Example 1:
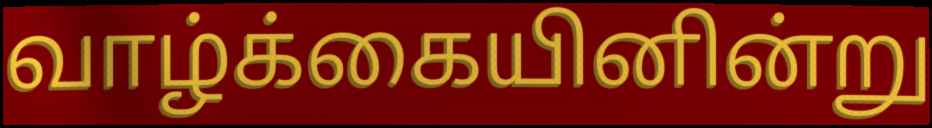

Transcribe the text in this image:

வாழ்க்கையினின்று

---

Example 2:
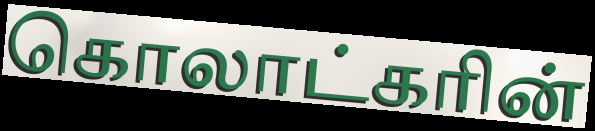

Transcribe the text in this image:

கொலாட்கரின்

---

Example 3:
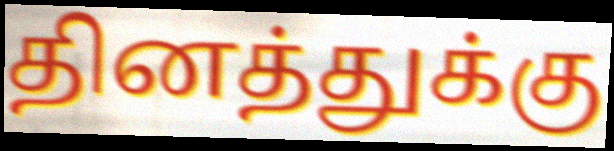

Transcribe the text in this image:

தினத்துக்கு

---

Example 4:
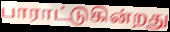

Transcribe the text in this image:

பாராட்டுகின்றது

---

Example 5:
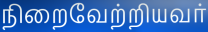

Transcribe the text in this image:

நிறைவேற்றியவர்